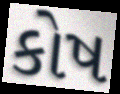
કોષ